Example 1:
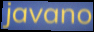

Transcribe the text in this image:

javano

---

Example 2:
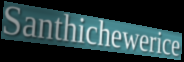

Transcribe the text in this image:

Santhichewerice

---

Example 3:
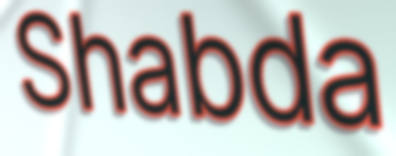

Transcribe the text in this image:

Shabda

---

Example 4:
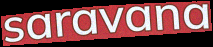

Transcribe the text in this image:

saravana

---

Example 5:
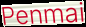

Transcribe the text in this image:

Penmai